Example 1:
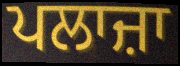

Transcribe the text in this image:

ਪਲਾਜ਼ਾ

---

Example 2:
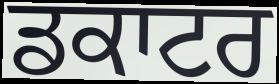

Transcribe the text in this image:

ਡਕਾਟਰ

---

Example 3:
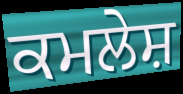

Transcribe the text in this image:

ਕਮਲੇਸ਼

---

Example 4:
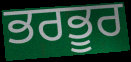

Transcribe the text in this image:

ਭਰਭੂਰ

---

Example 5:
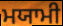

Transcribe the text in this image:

ਮਯਾਮੀ